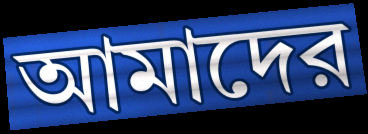
আমাদের